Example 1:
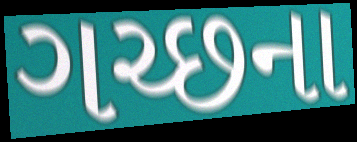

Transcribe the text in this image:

ગચ્છના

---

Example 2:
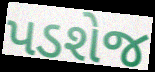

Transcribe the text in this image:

પડશેજ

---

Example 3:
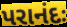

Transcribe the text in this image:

પરાનંદઃ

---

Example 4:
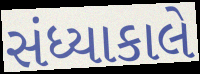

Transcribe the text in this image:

સંધ્યાકાલે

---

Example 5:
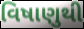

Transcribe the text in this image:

વિષાણુથી